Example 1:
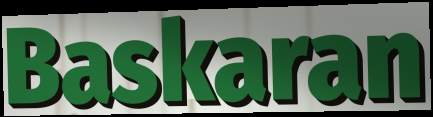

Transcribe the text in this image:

Baskaran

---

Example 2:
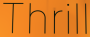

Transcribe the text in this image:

Thrill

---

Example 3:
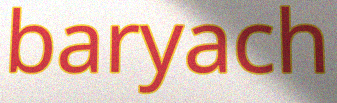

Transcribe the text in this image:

baryach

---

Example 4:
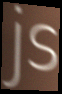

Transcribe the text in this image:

js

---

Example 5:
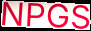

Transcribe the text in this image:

NPGS